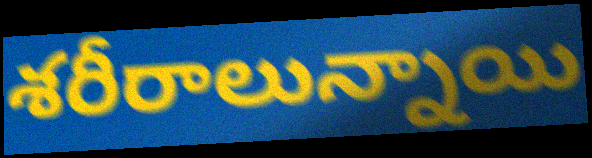
శరీరాలున్నాయి